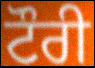
ਟੌਰੀ